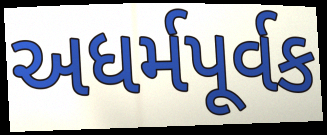
અધર્મપૂર્વક